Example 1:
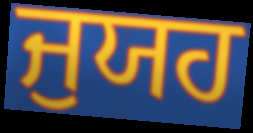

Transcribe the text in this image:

ਜੁਯਹ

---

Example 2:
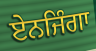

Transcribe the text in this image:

ਏਨਜਿੰਗਾ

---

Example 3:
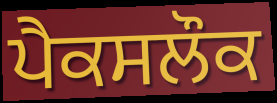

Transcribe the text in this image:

ਪੈਕਸਲੌਕ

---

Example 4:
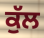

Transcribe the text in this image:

ਕੁੱਲ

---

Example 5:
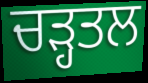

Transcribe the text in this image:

ਚੜ੍ਹਤਲ